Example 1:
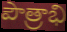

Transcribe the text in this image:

పౌత్రాభి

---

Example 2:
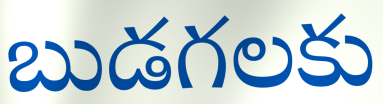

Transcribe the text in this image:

బుడగలకు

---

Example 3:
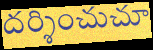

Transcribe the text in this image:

దర్శించుచూ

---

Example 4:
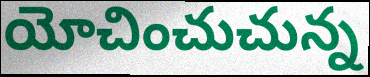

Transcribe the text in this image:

యోచించుచున్న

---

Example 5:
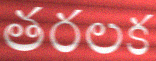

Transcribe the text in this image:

తరలక